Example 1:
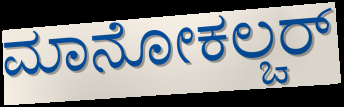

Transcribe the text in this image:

ಮಾನೋಕಲ್ಚರ್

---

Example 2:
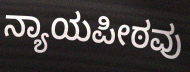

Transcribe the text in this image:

ನ್ಯಾಯಪೀಠವು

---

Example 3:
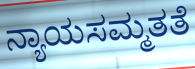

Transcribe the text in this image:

ನ್ಯಾಯಸಮ್ಮತತೆ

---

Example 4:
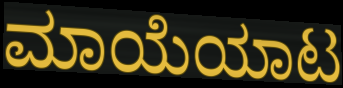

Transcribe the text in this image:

ಮಾಯೆಯಾಟ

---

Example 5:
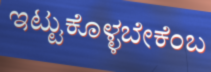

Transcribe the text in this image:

ಇಟ್ಟುಕೊಳ್ಳಬೇಕೆಂಬ